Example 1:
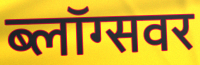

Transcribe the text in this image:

ब्लॉग्सवर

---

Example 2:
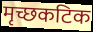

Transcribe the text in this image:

मृच्छकटिक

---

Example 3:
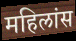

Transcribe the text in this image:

महिलांस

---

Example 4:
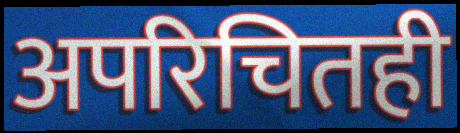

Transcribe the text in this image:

अपरिचितही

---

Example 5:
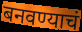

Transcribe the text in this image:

बनवण्याचं